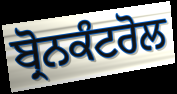
ਬ੍ਰੋਨਕੰਟਰੋਲ